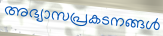
അഭ്യാസപ്രകടനങ്ങൾ